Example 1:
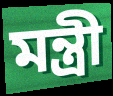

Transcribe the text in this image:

মন্ত্রী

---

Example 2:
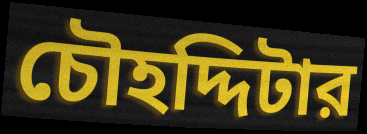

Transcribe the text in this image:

চৌহদ্দিটার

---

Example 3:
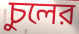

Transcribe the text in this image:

চুলের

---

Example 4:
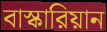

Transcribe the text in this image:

বাস্কারিয়ান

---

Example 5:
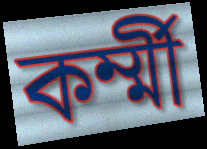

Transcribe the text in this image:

কর্ম্মী